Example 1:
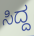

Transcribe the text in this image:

ಸಿದ್ದ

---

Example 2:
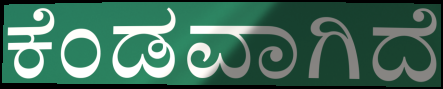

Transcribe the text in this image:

ಕೆಂಡವಾಗಿದೆ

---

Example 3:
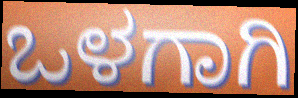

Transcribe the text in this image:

ಒಳಗಾಗಿ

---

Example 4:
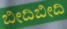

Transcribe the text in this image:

ಬೀದಿಬೀದಿ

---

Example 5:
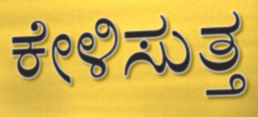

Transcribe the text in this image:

ಕೇಳಿಸುತ್ತ